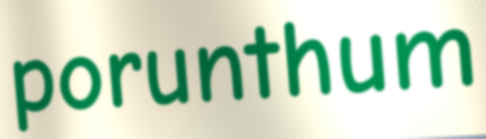
porunthum